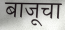
बाजूचा